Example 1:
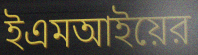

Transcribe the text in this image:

ইএমআইয়ের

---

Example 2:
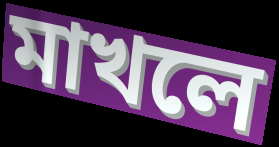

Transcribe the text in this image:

মাখলে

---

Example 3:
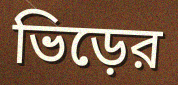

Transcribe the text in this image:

ভিড়ের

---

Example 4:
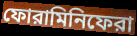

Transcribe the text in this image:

ফোরামিনিফেরা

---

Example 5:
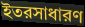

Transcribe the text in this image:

ইতরসাধারণ